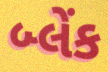
બ્લેંક